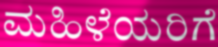
ಮಹಿಳೆಯರಿಗೆ